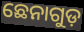
ଛେନାଗୁଡ଼